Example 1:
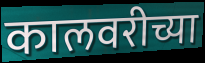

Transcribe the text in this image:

कालवरीच्या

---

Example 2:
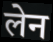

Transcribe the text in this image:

लेन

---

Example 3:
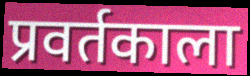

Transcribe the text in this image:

प्रवर्तकाला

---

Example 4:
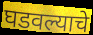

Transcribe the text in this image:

घडवल्याचे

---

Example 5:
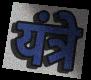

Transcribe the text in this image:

यंत्रे